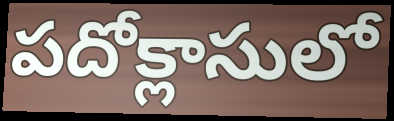
పదోక్లాసులో